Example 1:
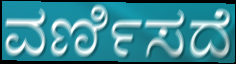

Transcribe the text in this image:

ವರ್ಣಿಸದೆ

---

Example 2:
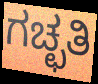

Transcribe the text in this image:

ಗಚ್ಛತಿ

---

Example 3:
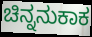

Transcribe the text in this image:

ಚಿನ್ನನುಕಾಕ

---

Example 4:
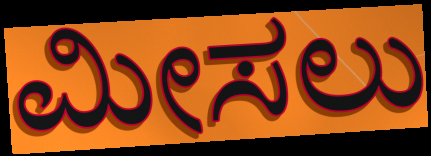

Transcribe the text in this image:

ಮೀಸಲು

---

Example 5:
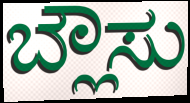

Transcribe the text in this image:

ಬ್ಲೌಸು